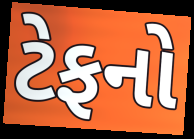
ટેફનો